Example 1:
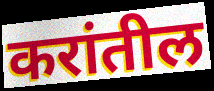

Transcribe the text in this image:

करांतील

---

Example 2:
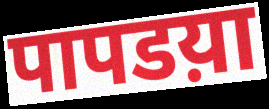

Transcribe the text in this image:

पापडय़ा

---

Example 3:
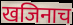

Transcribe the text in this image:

खजिनाच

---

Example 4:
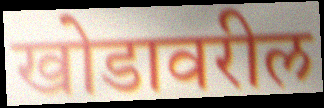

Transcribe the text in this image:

खोडावरील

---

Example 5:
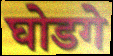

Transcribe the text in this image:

घोडगे